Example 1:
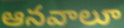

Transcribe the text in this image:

ఆనవాలూ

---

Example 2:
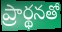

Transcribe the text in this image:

ప్రార్థనతో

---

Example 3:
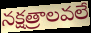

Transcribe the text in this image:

నక్షత్రాలవలే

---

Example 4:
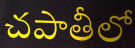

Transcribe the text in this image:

చపాతీలో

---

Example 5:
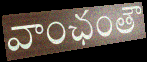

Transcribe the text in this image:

వాంఛంతౌ